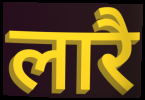
लारै